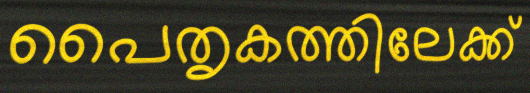
പൈതൃകത്തിലേക്ക്